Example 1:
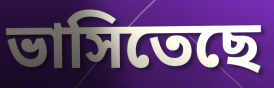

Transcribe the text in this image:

ভাসিতেছে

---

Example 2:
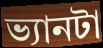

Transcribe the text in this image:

ভ্যানটা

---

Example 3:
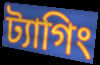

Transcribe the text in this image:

ট্যাগিং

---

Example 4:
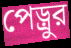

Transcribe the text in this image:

পেড়্রুর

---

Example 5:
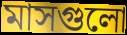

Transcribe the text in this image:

মাসগুলো